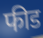
फीड